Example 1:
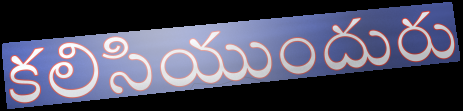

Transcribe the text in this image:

కలిసియుందురు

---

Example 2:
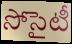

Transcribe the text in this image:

సోసైటీ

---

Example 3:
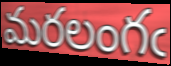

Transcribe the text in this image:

మరలంగఁ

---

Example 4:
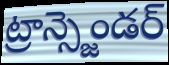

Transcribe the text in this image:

ట్రాన్స్జెండర్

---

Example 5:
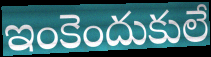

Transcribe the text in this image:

ఇంకెందుకులే